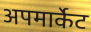
अपमार्केट